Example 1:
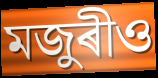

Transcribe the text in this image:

মজুৰীও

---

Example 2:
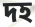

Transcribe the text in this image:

দহ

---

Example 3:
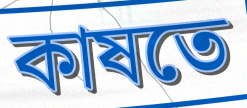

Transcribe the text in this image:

কাষতে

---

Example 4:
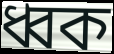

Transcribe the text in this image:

ধ্বক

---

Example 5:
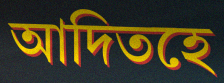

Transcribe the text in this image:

আদিতহে